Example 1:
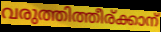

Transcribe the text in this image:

വരുത്തിത്തീര്ക്കാന്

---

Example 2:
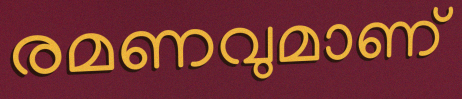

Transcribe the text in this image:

രമണവുമാണ്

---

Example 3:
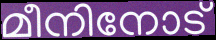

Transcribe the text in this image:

മീനിനോട്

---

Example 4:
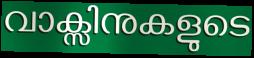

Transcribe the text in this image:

വാക്സിനുകളുടെ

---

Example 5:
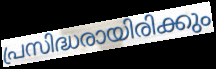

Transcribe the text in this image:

പ്രസിദ്ധരായിരിക്കും